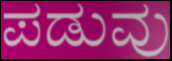
ಪಡುವು